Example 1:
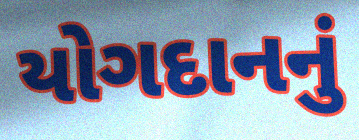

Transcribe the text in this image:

યોગદાનનું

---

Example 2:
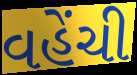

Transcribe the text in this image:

વહેંચી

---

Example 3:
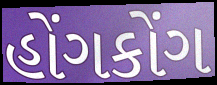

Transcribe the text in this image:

હોંગકોંગ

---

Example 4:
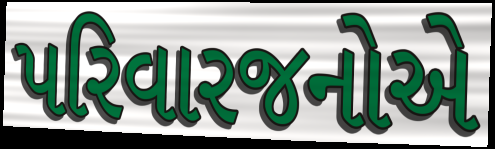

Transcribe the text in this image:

પરિવારજનોએ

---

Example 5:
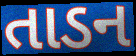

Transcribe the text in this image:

તાડન